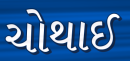
ચોથાઈ